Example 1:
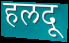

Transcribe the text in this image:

हलदू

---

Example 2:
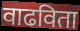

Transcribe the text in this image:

वाढविता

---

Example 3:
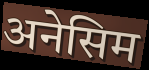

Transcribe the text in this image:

अनेसिम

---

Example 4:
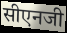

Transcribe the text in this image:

सीएनजी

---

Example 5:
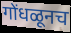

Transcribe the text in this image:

गोंधळूनच